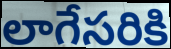
లాగేసరికి